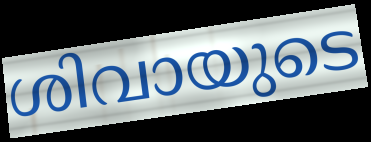
ശിവായുടെ